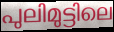
പുലിമുട്ടിലെ